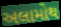
અલામોથ